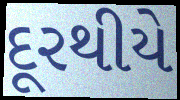
દૂરથીયે